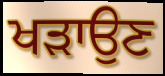
ਖੜਾਉਣ